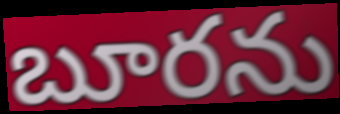
బూరను